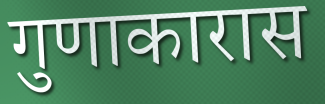
गुणाकारास